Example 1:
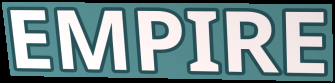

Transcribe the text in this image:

EMPIRE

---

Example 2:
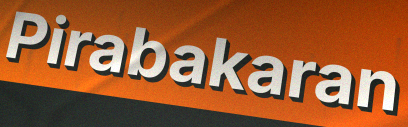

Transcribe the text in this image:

Pirabakaran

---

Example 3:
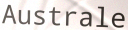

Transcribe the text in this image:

Australe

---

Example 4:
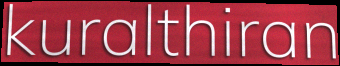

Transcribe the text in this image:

kuralthiran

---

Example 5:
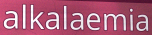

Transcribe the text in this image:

alkalaemia